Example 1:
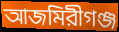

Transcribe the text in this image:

আজমিরীগঞ্জ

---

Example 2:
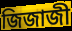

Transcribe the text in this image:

জিজাজী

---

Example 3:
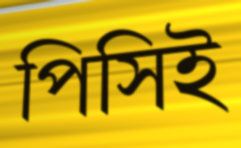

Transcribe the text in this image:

পিসিই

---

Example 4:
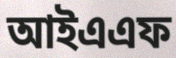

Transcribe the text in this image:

আইএএফ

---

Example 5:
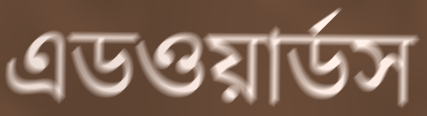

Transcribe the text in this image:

এডওয়ার্ডস